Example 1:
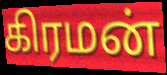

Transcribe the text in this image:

கிரமன்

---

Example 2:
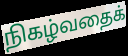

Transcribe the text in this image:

நிகழ்வதைக்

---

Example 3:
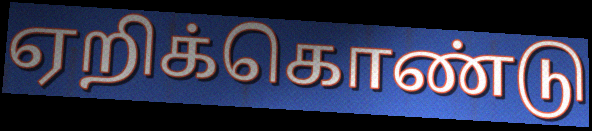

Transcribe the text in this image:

ஏறிக்கொண்டு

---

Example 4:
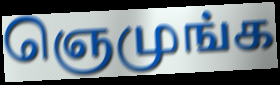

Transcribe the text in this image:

ஞெமுங்க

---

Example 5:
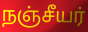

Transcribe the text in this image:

நஞ்சீயர்